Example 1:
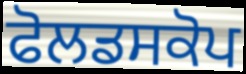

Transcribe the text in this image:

ਫੋਲਡਸਕੋਪ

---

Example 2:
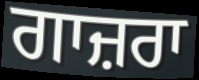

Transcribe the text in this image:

ਗਾਜ਼ਰਾ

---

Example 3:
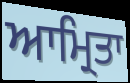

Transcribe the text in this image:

ਆਮ੍ਰਿਤਾ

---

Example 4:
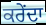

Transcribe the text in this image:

ਕਰੇਂਦਾ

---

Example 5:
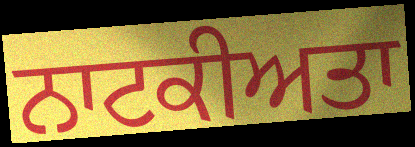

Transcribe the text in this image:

ਨਾਟਕੀਅਤਾ